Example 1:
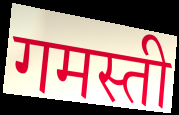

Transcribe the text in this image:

गमस्ती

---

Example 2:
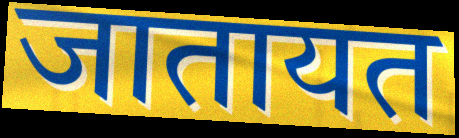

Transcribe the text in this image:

जातायत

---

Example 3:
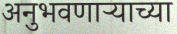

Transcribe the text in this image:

अनुभवणार्‍याच्या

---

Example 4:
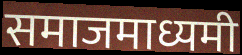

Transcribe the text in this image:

समाजमाध्यमी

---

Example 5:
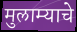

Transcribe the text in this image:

मुलाम्याचे